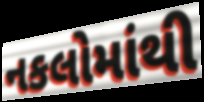
નકલોમાંથી